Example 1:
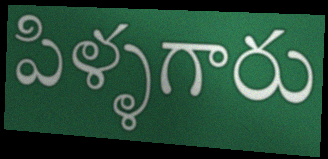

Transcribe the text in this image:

పిళ్ళగారు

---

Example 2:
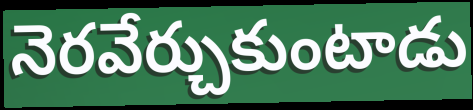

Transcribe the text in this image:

నెరవేర్చుకుంటాడు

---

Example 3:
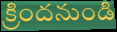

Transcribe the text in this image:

క్రిందనుండి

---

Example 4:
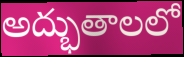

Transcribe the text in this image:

అద్భుతాలలో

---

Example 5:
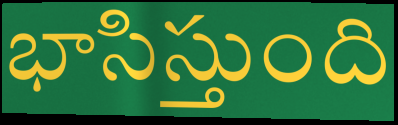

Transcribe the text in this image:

భాసిస్తుంది